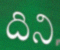
దిని